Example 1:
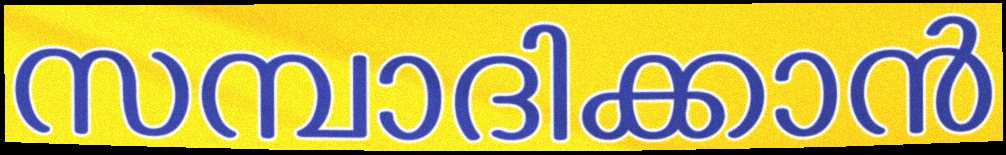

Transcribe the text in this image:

സമ്പാദിക്കാൻ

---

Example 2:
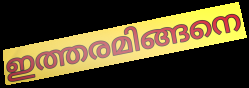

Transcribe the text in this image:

ഇത്തരമിങ്ങനെ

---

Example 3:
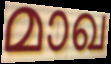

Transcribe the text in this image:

മാഖ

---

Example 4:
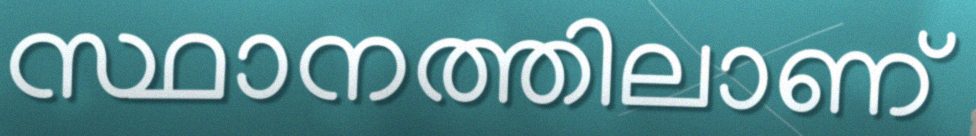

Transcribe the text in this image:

സ്ഥാനത്തിലാണ്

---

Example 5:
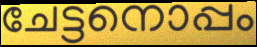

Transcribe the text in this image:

ചേട്ടനൊപ്പം